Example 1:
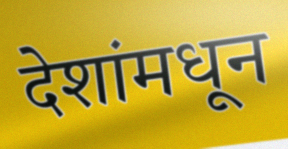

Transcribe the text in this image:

देशांमधून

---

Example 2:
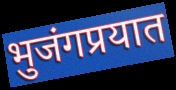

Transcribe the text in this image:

भुजंगप्रयात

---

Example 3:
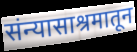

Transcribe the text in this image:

संन्यासाश्रमातून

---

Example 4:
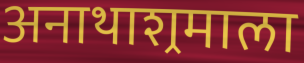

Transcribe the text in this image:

अनाथाश्रमाला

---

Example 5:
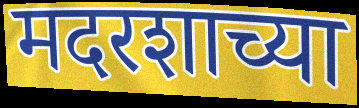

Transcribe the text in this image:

मदरशाच्या